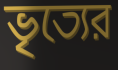
ভৃত্যের